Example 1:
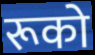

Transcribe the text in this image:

रूको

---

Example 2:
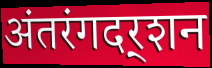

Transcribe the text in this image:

अंतरंगदर्शन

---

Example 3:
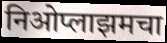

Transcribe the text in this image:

निओप्लाझमचा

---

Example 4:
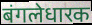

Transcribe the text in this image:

बंगलेधारक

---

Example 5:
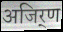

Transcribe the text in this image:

अजिर्ण